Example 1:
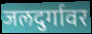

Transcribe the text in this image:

जलदुर्गावर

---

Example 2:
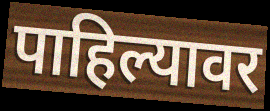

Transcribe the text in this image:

पाहिल्यावर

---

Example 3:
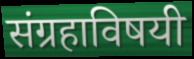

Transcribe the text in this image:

संग्रहाविषयी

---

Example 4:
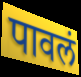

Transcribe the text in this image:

पावलं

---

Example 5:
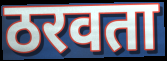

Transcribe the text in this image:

ठरवता